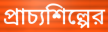
প্রাচ্যশিল্পের